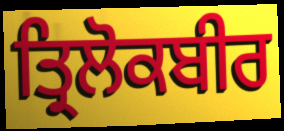
ਤ੍ਰਿਲੋਕਬੀਰ